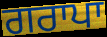
ਗਰਾਪਾ